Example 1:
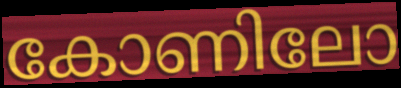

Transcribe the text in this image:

കോണിലോ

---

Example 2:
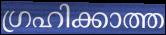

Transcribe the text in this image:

ഗ്രഹിക്കാത്ത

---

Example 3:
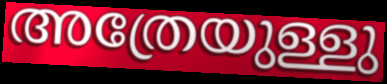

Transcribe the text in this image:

അത്രേയുള്ളു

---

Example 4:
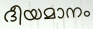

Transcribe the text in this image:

ദീയമാനം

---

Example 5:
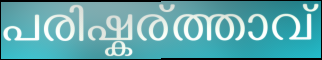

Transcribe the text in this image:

പരിഷ്കര്ത്താവ്